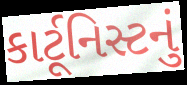
કાર્ટૂનિસ્ટનું